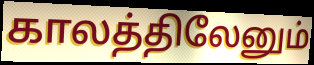
காலத்திலேனும்